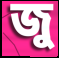
জু